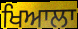
ਖਿਆਲਾ